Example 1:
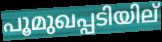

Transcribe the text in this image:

പൂമുഖപ്പടിയില്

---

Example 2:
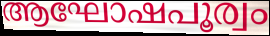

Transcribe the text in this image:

ആഘോഷപൂര്വം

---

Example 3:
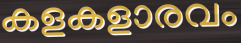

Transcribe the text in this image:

കളകളാരവം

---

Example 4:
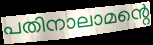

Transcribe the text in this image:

പതിനാലാമന്റെ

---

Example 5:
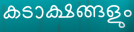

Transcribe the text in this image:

കടാക്ഷങ്ങളും